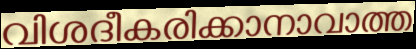
വിശദീകരിക്കാനാവാത്ത